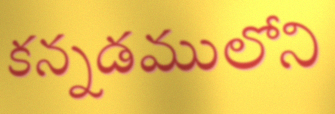
కన్నడములోని